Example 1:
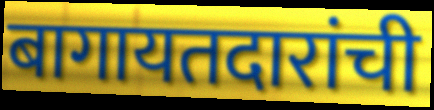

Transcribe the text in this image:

बागायतदारांची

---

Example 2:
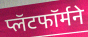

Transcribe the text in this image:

प्लॅटफॉर्मने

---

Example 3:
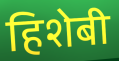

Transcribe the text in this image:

हिशेबी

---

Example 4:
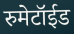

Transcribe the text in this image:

रुमेटॉईड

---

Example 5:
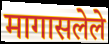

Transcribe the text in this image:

मागासलेले